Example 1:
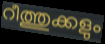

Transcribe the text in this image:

റീത്തുക്കളും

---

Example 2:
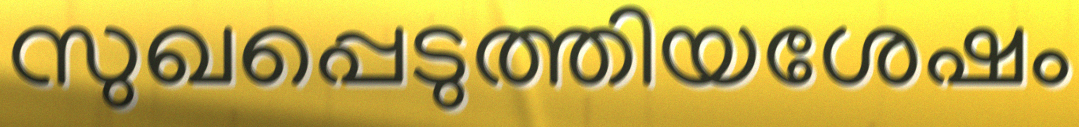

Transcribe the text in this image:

സുഖപ്പെടുത്തിയശേഷം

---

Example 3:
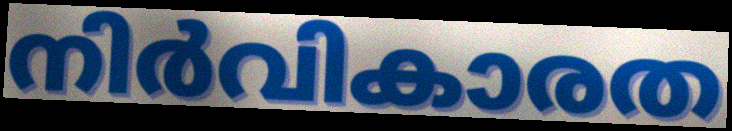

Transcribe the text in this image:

നിർവികാരത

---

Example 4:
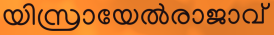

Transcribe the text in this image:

യിസ്രായേൽരാജാവ്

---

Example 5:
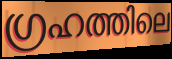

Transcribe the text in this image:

ഗ്രഹത്തിലെ